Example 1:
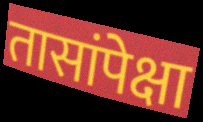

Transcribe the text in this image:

तासांपेक्षा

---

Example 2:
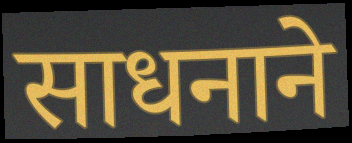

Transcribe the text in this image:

साधनाने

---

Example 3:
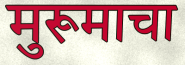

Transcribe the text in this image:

मुरूमाचा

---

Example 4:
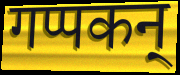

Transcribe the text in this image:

गप्पकन्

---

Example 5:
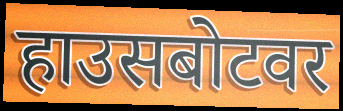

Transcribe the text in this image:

हाउसबोटवर